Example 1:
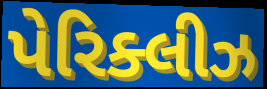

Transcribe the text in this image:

પેરિક્લીઝ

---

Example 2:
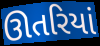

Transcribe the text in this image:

ઊતરિયાં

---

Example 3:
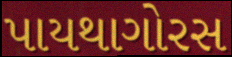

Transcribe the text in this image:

પાયથાગોરસ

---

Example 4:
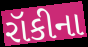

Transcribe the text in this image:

રૉકીના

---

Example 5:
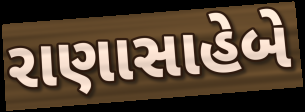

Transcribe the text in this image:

રાણાસાહેબે